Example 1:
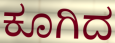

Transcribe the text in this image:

ಕೂಗಿದ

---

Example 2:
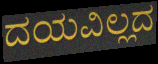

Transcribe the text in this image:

ದಯವಿಲ್ಲದ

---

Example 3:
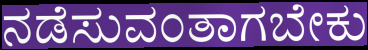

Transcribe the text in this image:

ನಡೆಸುವಂತಾಗಬೇಕು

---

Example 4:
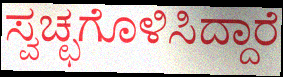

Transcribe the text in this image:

ಸ್ವಚ್ಛಗೊಳಿಸಿದ್ದಾರೆ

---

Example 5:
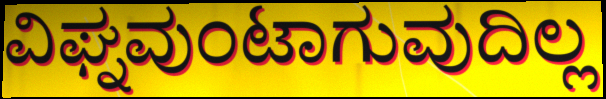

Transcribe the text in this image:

ವಿಘ್ನವುಂಟಾಗುವುದಿಲ್ಲ